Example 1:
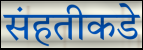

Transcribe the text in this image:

संहतीकडे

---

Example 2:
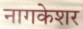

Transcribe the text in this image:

नागकेशर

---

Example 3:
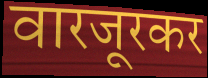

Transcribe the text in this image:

वारजूरकर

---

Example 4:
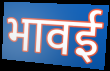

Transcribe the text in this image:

भावई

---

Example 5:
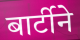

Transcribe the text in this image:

बार्टीने